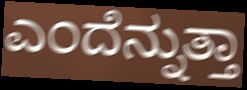
ಎಂದೆನ್ನುತ್ತಾ